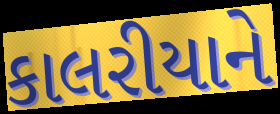
કાલરીયાને